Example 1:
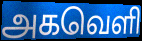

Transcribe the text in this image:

அகவெளி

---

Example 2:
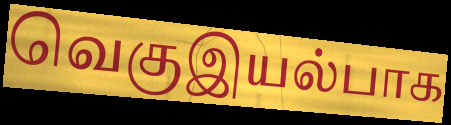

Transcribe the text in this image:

வெகுஇயல்பாக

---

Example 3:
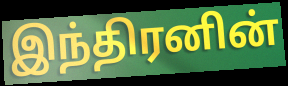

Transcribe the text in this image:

இந்திரனின்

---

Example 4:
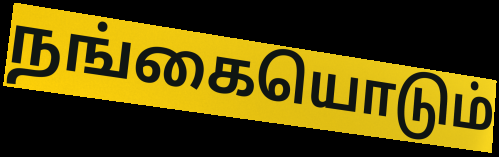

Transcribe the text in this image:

நங்கையொடும்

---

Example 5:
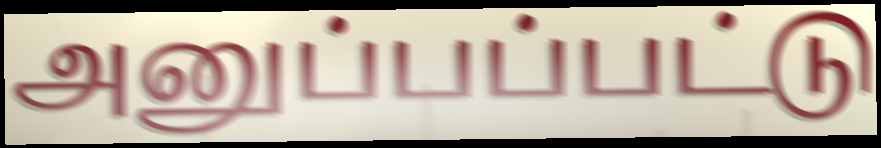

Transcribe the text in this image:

அனுப்பப்பட்டு